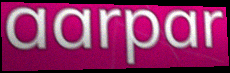
aarpar